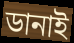
ডানাই